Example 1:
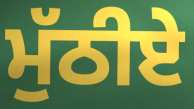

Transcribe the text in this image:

ਮੁੱਠੀਏ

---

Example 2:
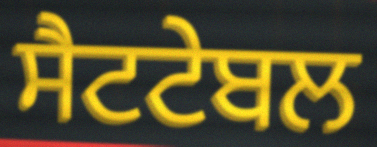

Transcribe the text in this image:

ਸੈਟਟੇਬਲ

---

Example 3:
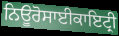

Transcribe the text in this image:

ਨਿਊਰੋਸਾਈਕਾਇਟ੍ਰੀ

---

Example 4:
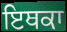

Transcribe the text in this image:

ਇਥਕਾ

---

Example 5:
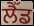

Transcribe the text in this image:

ਲੈੱਡ